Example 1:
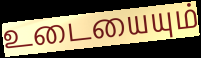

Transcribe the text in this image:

உடையையும்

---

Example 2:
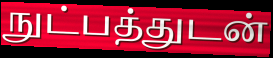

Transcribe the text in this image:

நுட்பத்துடன்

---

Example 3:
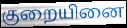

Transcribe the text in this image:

குறையினை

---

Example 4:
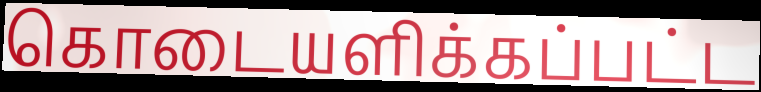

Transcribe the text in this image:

கொடையளிக்கப்பட்ட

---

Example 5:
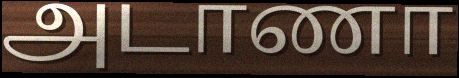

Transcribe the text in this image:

அடாணா